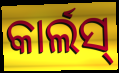
କାର୍ଲସ୍